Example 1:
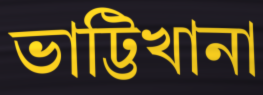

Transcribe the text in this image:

ভাট্টিখানা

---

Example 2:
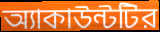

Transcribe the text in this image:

অ্যাকাউন্টটির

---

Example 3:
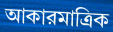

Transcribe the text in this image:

আকারমাত্রিক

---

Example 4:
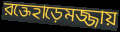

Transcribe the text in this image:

রক্তেহাড়েমজ্জায়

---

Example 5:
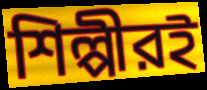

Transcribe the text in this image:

শিল্পীরই